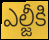
ఎల్జీకి